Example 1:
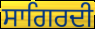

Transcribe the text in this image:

ਸਾਗਿਰਦੀ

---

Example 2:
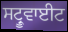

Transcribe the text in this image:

ਸਟ੍ਰੂਵਾਈਟ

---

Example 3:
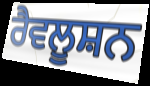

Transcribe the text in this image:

ਰੈਵਲੂਸ਼ਨ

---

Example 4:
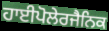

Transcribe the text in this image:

ਹਾਈਪੋਲੇਰਜੈਨਿਕ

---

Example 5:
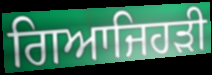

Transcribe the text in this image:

ਗਿਆਜਿਹੜੀ